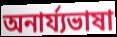
অনার্য্যভাষা